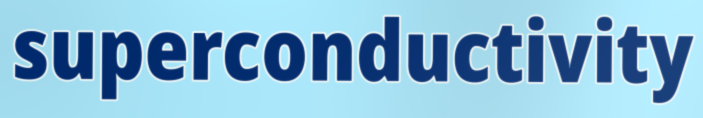
superconductivity